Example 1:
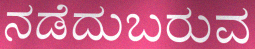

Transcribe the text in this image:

ನಡೆದುಬರುವ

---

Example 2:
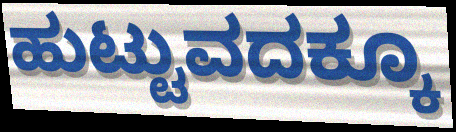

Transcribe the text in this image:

ಹುಟ್ಟುವದಕ್ಕೂ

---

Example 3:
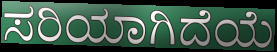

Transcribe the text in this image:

ಸರಿಯಾಗಿದೆಯೆ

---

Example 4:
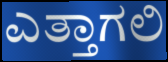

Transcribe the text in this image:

ಎತ್ತಾಗಲಿ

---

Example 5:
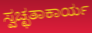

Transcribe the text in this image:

ಸ್ವಚ್ಛತಾಕಾರ್ಯ